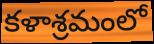
కళాశ్రమంలో